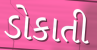
ડોકાતી